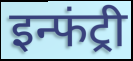
इन्फंट्री